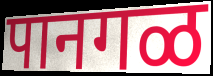
पानगळ